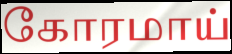
கோரமாய்